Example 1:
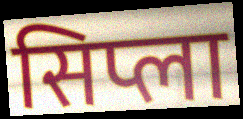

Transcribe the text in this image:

सिप्ला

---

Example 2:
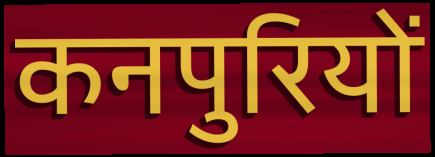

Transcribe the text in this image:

कनपुरियों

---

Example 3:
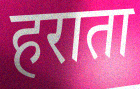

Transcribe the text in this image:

हराता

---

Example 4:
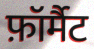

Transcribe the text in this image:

फ़ॉर्मैट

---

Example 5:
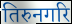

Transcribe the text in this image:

तिरुनगरि